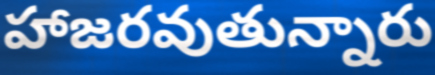
హాజరవుతున్నారు